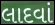
લાદવાં